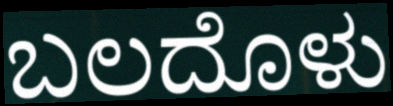
ಬಲದೊಳು